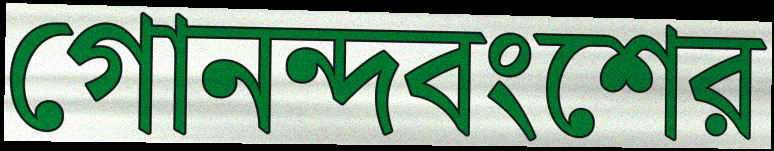
গোনন্দবংশের